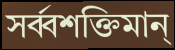
সর্ব্বশক্তিমান্